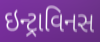
ઇન્ટ્રાવિનસ